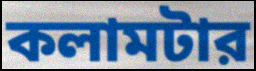
কলামটার